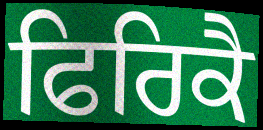
ਫਿਰਿਕੈ